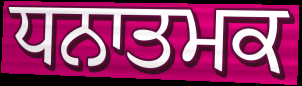
ਧਨਾਤਮਕ